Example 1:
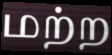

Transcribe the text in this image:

மற்ற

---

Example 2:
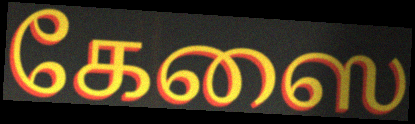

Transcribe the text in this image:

கேஸை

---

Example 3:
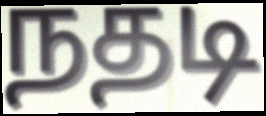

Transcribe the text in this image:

நதடி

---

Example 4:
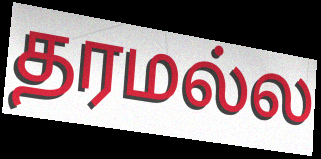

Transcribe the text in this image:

தரமல்ல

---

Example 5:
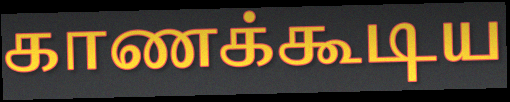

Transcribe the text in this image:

காணக்கூடிய